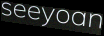
seeyoan